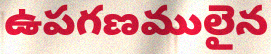
ఉపగణములైన